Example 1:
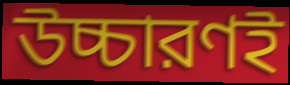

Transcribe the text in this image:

উচ্চারণই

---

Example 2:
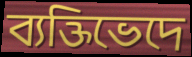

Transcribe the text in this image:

ব্যক্তিভেদে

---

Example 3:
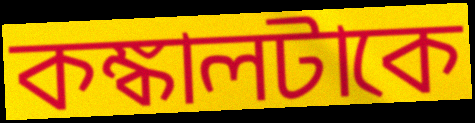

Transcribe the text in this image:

কঙ্কালটাকে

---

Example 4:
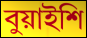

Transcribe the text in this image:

বুয়াইশি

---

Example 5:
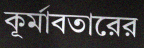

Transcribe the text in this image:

কূর্মাবতারের